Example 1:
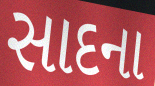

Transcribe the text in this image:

સાદના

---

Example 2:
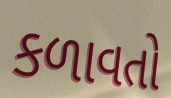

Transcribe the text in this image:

કળાવતો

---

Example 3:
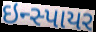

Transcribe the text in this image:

ઇન્સ્પાયર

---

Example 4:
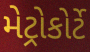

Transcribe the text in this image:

મેટ્રોકોર્ટે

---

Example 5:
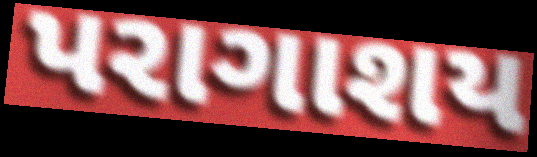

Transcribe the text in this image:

પરાગાશય